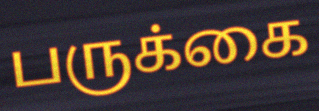
பருக்கை